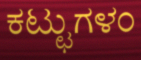
ಕಟ್ಟುಗಳಂ